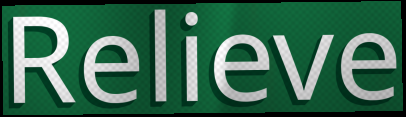
Relieve